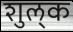
शुल्क